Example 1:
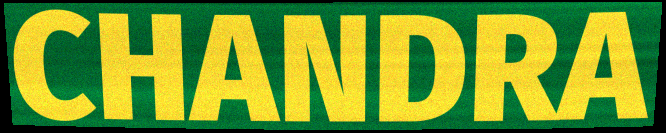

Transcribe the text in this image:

CHANDRA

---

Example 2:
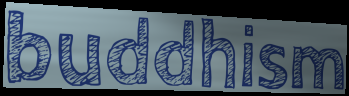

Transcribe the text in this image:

buddhism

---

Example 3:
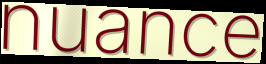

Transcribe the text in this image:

nuance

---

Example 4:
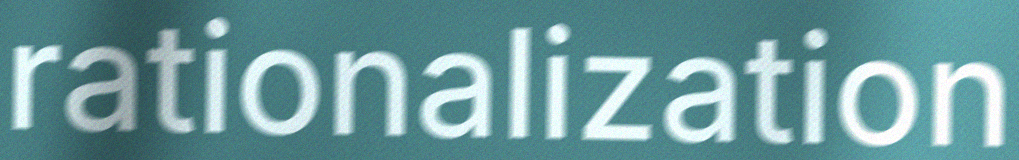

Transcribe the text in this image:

rationalization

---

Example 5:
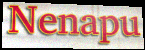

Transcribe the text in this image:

Nenapu